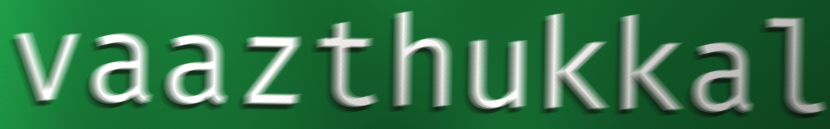
vaazthukkal